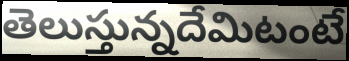
తెలుస్తున్నదేమిటంటే